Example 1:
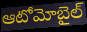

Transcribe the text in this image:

ఆటోమోబైల్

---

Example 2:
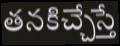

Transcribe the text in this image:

తనకిచ్చేస్తే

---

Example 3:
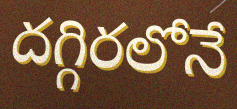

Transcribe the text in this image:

దగ్గిరలోనే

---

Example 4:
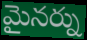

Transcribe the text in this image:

మైనర్ను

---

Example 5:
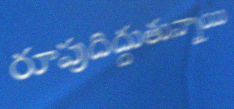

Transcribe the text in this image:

రూపుదిద్దుతున్నాయి